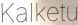
Kalketu